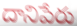
దానిపేరు